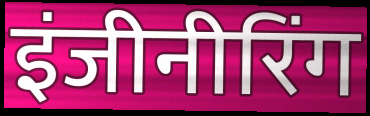
इंजीनीरिंग